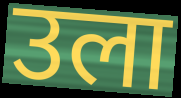
उला